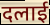
दलाई